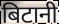
बिटानी